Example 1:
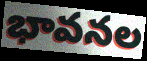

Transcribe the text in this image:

భావనల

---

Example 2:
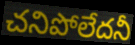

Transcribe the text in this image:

చనిపోలేదనీ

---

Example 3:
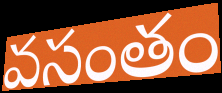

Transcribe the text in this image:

వసంతం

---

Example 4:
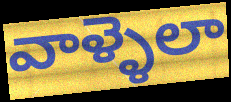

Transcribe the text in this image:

వాళ్ళెలా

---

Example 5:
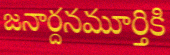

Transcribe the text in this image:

జనార్దనమూర్తికి